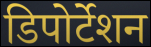
डिपोर्टेशन